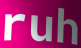
ruh